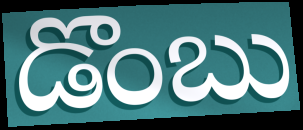
డొంబు